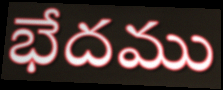
భేదము